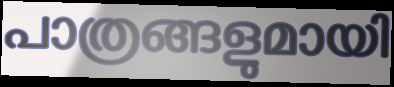
പാത്രങ്ങളുമായി